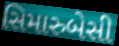
સિમારુબેસી